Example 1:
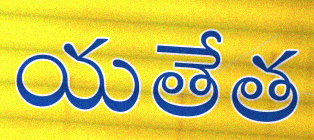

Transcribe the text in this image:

యతేత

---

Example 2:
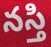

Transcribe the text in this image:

నస్తి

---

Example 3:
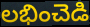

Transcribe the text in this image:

లభించెడి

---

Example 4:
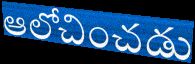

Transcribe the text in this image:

ఆలోచించడు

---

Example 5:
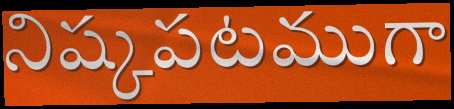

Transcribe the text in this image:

నిష్కపటముగా